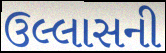
ઉલ્લાસની